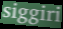
siggiri